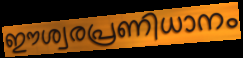
ഈശ്വരപ്രണിധാനം